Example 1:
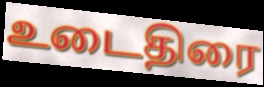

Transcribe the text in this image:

உடைதிரை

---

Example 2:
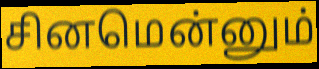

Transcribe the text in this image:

சினமென்னும்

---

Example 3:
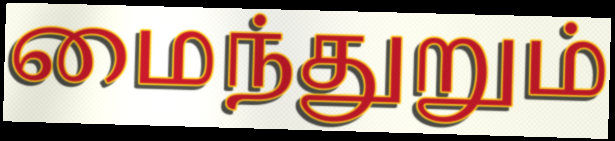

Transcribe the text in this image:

மைந்துறும்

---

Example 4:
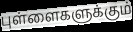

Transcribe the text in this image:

புள்ளைகளுக்கும்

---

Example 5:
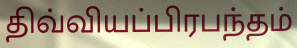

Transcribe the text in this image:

திவ்வியப்பிரபந்தம்